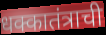
धक्कातंत्राची